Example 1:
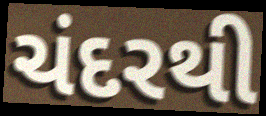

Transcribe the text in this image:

ચંદરથી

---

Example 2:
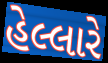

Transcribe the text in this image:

હેલ્લારે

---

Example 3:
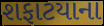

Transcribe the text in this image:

શફાટયાના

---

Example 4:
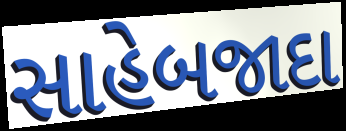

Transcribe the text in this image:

સાહેબજાદા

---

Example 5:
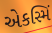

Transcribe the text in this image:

એકસ્મિં